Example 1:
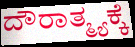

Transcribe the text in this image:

ದೌರಾತ್ಮ್ಯಕ್ಕೆ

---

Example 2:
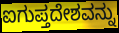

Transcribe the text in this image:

ಐಗುಪ್ತದೇಶವನ್ನು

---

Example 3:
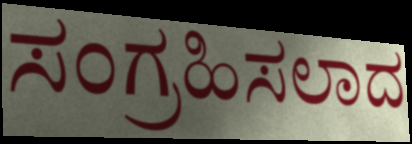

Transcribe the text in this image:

ಸಂಗ್ರಹಿಸಲಾದ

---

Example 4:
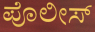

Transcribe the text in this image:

ಪೊಲೀಸ್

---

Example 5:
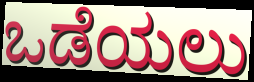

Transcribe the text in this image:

ಒಡೆಯಲು